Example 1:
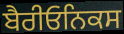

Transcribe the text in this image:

ਬੈਰੀਓਨਿਕਸ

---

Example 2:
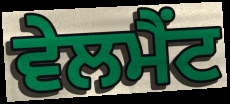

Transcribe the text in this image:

ਵੇਲਮੈਂਟ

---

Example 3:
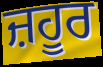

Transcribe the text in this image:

ਜ਼ਹੂਰ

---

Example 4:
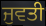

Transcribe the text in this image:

ਜੁਵਤੀ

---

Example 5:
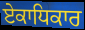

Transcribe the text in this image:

ਏਕਾਧਿਕਾਰ